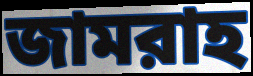
জামরাহ